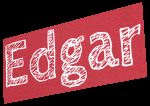
Edgar